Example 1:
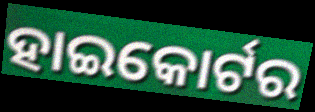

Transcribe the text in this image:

ହାଇକୋର୍ଟର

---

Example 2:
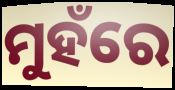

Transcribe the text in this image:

ମୁହଁରେ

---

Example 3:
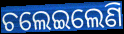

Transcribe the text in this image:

ଚଲେଇଲେଣି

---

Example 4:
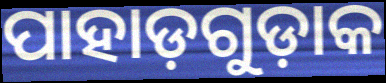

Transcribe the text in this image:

ପାହାଡ଼ଗୁଡ଼ାକ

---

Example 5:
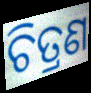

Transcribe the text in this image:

ଚିତ୍ରଣ